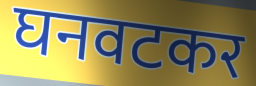
घनवटकर